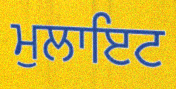
ਮੁਲਾਇਟ